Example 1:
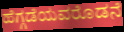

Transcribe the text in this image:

ಹೆಗ್ಗಡೆಯವರೊಡನೆ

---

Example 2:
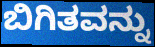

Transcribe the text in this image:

ಬಿಗಿತವನ್ನು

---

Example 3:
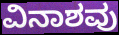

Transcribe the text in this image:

ವಿನಾಶವು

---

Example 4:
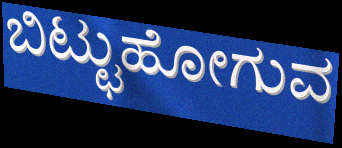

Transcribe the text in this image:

ಬಿಟ್ಟುಹೋಗುವ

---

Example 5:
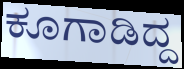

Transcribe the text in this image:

ಕೂಗಾಡಿದ್ದ